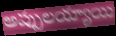
అప్పులయ్యాయి